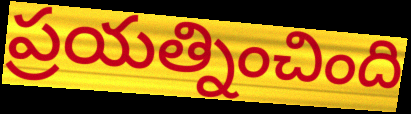
ప్రయత్నించింది